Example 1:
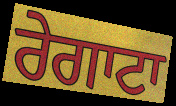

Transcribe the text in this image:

ਰੇਗਾਟਾ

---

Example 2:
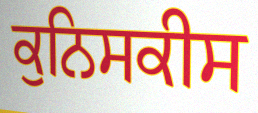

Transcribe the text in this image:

ਕੁਨਿਸਕੀਸ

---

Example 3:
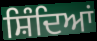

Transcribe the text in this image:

ਸ਼ਿੰਦਿਆਂ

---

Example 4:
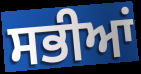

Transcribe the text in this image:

ਸਭੀਆਂ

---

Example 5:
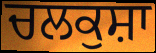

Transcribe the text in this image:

ਚਲਕੁਸ਼ਾ